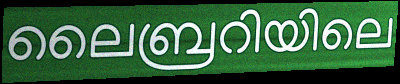
ലൈബ്രറിയിലെ